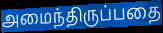
அமைந்திருப்பதை